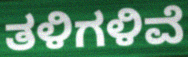
ತಳಿಗಳಿವೆ